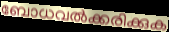
ബോധവൽക്കരിക്കുക